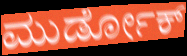
ಮುರ್ಡೋಕ್